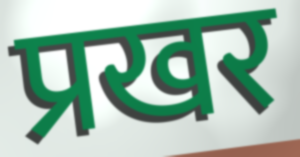
प्रखर